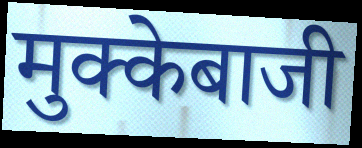
मुक्केबाजी